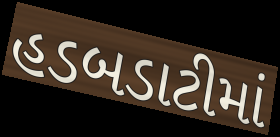
હડબડાટીમાં